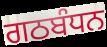
ਗਠਬੰਧਨ